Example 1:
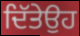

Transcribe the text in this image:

ਦਿੱਤੇਉਹ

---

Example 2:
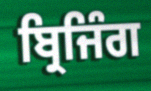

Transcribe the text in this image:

ਬ੍ਰਿਜਿੰਗ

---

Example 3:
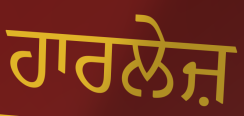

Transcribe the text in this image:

ਹਾਰਲੇਜ਼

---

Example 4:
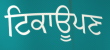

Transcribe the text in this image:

ਟਿਕਾਊਪਣ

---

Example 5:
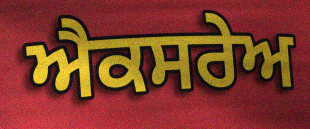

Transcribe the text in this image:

ਐਕਸਰੇਅ